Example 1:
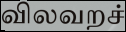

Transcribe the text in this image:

விலவறச்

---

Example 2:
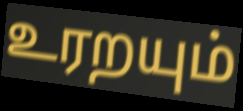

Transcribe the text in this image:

உரறயும்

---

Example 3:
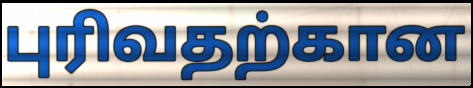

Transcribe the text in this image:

புரிவதற்கான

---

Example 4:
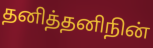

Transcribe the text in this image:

தனித்தனிநின்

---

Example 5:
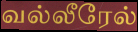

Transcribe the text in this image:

வல்லீரேல்